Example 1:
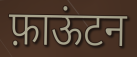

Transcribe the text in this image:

फ़ाऊंटन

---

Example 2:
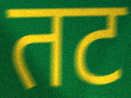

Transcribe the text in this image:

तट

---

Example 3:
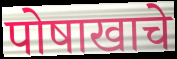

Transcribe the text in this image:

पोषाखाचे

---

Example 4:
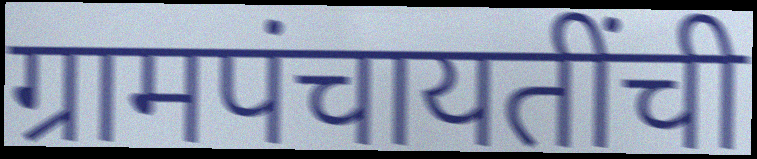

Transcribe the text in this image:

ग्रामपंचायतींची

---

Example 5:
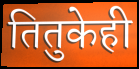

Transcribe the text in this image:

तितुकेही